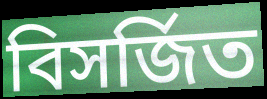
বিসর্জিত